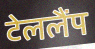
टेललैंप